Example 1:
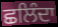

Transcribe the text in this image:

ਛਲਿੰਦਾ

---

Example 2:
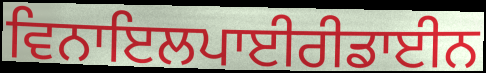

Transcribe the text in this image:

ਵਿਨਾਇਲਪਾਈਰੀਡਾਈਨ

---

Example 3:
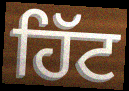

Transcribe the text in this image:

ਹਿੱਟ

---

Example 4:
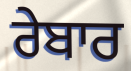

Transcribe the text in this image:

ਰੇਬਾਰ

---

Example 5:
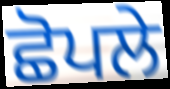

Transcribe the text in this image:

ਛੋਪਲੇ